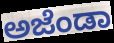
ಅಜೆಂಡಾ